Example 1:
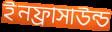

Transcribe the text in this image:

ইনফ্রাসাউন্ড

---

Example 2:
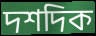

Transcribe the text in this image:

দশদিক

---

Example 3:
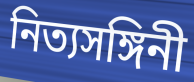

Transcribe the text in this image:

নিত্যসঙ্গিনী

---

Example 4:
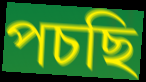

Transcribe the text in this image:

পচছি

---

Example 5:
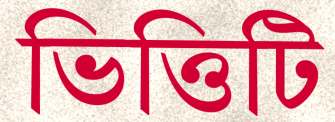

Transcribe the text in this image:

ভিত্তিটি